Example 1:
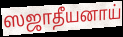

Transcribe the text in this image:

ஸஜாதீயனாய்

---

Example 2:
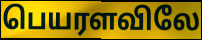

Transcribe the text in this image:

பெயரளவிலே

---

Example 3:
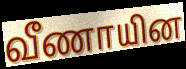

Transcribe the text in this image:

வீணாயின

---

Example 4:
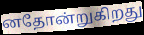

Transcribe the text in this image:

னதோன்றுகிறது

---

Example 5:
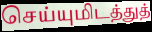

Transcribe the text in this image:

செய்யுமிடத்துத்